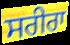
ਸਰੀਰਾ